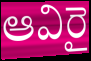
ఆవిరై